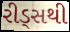
રીડ્સથી